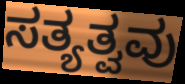
ಸತ್ಯತ್ವವು